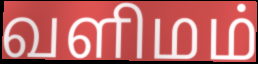
வளிமம்